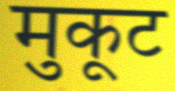
मुकूट